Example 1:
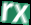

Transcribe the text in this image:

rx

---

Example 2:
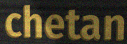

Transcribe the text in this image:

chetan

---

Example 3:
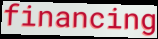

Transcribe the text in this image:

financing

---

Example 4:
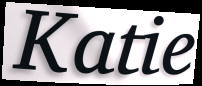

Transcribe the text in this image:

Katie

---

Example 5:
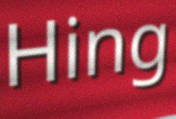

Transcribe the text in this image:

Hing